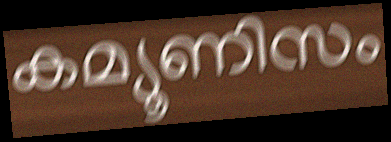
കമ്യൂണിസം